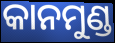
କାନମୁଣ୍ଡ